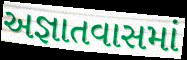
અજ્ઞાતવાસમાં